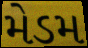
મેડમ